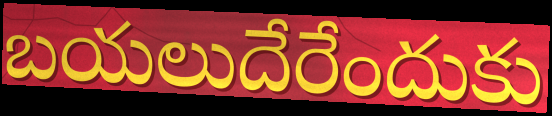
బయలుదేరేందుకు